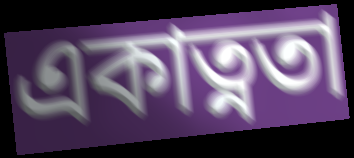
একাত্নতা